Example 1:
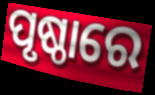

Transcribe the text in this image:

ପୃଷ୍ଠାରେ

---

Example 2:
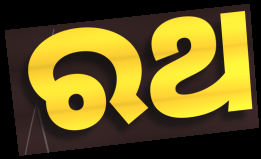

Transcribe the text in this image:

ରଥ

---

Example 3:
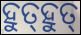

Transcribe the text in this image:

ହୁତ୍‌ହୁତ୍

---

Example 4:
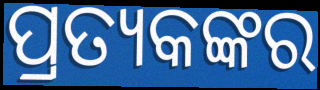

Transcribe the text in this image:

ପ୍ରତ୍ୟକଙ୍କର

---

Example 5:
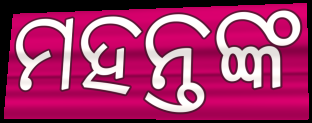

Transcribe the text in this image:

ମହନ୍ତଙ୍କ